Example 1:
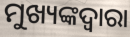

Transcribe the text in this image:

ମୁଖ୍ୟଙ୍କଦ୍ଵାରା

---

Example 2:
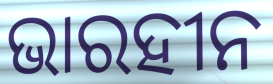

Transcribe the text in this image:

ଭାରହୀନ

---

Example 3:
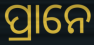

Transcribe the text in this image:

ପ୍ରାନେ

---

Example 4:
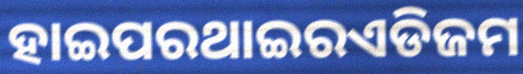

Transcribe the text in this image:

ହାଇପରଥାଇରଏଡିଜମ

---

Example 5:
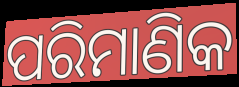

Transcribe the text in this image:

ପରିମାଣିକ